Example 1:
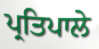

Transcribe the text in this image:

ਪ੍ਰਤਿਪਾਲੇ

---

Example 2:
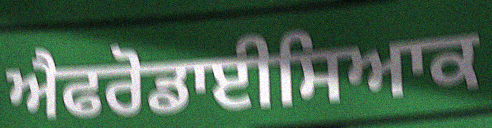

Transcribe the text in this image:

ਐਫਰੋਡਾਈਸਿਆਕ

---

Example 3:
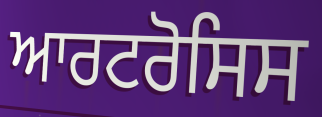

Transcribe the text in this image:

ਆਰਟਰੋਸਿਸ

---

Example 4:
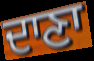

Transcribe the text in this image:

ਦਾਣਾ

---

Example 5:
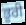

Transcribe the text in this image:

ਭੂਰੀ